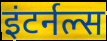
इंटर्नल्स